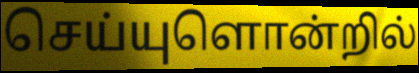
செய்யுளொன்றில்